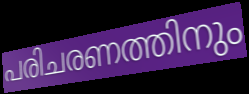
പരിചരണത്തിനും